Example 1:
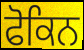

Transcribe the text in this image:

ਫੋਕਿਨ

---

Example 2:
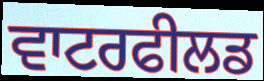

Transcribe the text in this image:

ਵਾਟਰਫੀਲਡ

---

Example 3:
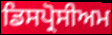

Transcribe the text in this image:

ਡਿਸਪ੍ਰੋਸੀਅਮ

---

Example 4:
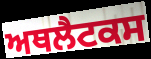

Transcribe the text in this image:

ਅਥਲੈਟਕਸ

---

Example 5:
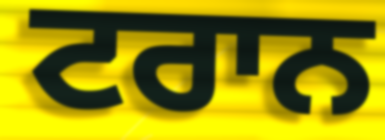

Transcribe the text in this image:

ਟਰਾਨ